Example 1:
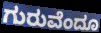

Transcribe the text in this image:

ಗುರುವೆಂದೂ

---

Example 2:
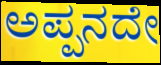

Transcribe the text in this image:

ಅಪ್ಪನದೇ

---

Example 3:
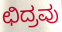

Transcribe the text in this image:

ಛಿದ್ರವು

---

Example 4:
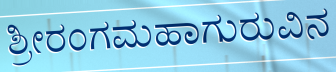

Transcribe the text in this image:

ಶ್ರೀರಂಗಮಹಾಗುರುವಿನ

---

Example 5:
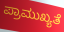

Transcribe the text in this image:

ಪ್ರಾಮುಖ್ಯತೆ